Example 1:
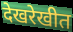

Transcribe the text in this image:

देखरेखीत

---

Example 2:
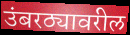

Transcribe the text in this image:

उंबरठ्यावरील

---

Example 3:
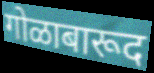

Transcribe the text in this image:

गोळाबारूद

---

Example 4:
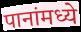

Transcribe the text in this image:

पानांमध्ये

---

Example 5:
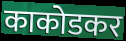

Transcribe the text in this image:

काकोडकर